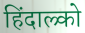
हिंदाल्को